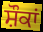
ਸ਼ੌਕਾਂ